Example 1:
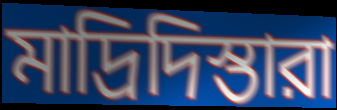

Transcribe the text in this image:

মাদ্রিদিস্তারা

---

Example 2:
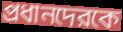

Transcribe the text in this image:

প্রধানদেরকে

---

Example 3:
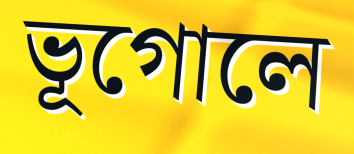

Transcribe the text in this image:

ভূগোলে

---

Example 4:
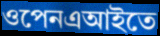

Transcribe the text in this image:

ওপেনএআইতে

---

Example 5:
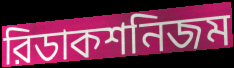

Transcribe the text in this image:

রিডাকশনিজম